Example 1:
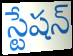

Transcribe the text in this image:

స్టేషన్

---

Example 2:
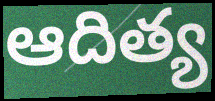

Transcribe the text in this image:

ఆదిత్య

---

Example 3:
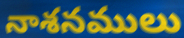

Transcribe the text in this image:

నాశనములు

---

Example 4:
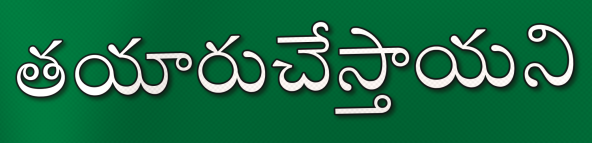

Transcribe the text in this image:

తయారుచేస్తాయని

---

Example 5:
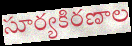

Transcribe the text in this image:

సూర్యకిరణాల